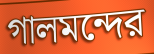
গালমন্দের